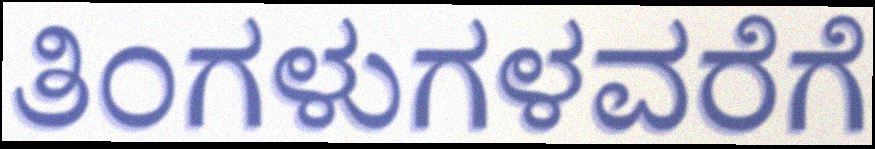
ತಿಂಗಳುಗಳವರೆಗೆ